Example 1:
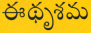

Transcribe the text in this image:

ఈథృశమ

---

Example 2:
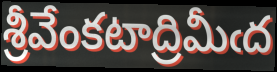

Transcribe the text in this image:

శ్రీవేంకటాద్రిమీఁద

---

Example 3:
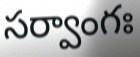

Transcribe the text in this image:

సర్వాంగః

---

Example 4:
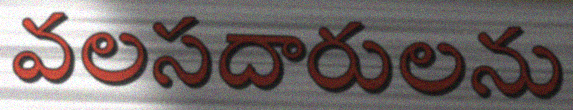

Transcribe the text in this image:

వలసదారులను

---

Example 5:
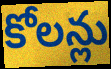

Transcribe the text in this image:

కోలన్లు